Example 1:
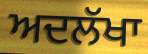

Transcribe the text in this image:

ਅਦਲੱਖਾ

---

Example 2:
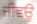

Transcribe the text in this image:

ਜੀਵਊ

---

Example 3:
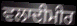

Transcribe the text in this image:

ਵਲਾਦੀਮੀਰ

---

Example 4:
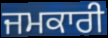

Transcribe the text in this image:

ਜਮਕਾਰੀ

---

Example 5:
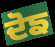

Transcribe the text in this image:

ਦੋਙ